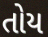
તોય